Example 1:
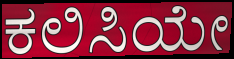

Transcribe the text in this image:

ಕಲಿಸಿಯೇ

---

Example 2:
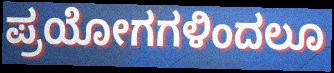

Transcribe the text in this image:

ಪ್ರಯೋಗಗಳಿಂದಲೂ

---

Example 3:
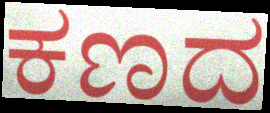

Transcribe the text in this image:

ಕಣದ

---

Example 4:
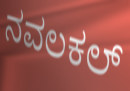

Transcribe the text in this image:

ನವಲಕಲ್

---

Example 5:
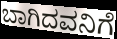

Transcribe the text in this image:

ಬಾಗಿದವನಿಗೆ